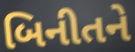
બિનીતને